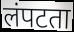
लंपटता